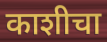
काशीचा